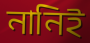
নানিই